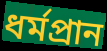
ধর্মপ্রান